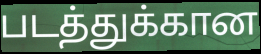
படத்துக்கான